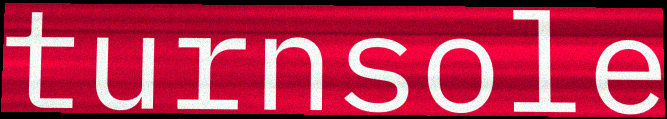
turnsole